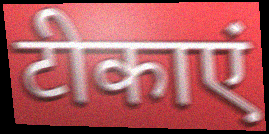
टीकाएं